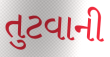
તુટવાની